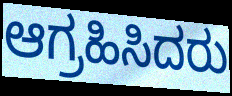
ಆಗ್ರಹಿಸಿದರು